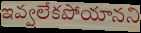
ఇవ్వలేకపోయానని